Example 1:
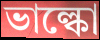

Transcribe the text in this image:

ভাল্কো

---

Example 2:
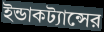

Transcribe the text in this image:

ইন্ডাকট্যান্সের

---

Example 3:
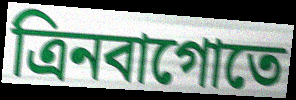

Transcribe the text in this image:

ত্রিনবাগোতে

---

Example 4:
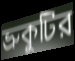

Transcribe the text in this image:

ভ্রুকুটির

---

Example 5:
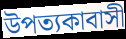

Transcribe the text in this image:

উপত্যকাবাসী